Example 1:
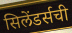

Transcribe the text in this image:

सिलेंडर्सची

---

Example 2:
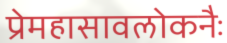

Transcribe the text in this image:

प्रेमहासावलोकनैः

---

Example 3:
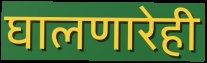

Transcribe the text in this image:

घालणारेही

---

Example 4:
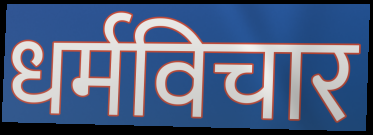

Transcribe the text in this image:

धर्मविचार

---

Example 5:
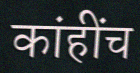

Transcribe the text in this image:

कांहींच